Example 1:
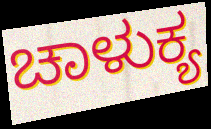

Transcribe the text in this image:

ಚಾಳುಕ್ಯ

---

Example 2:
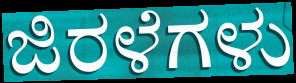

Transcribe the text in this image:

ಜಿರಳೆಗಳು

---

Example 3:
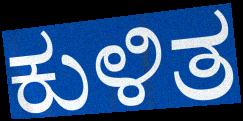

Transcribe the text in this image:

ಕುಳಿತ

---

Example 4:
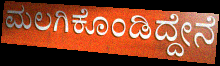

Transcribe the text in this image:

ಮಲಗಿಕೊಂಡಿದ್ದೇನೆ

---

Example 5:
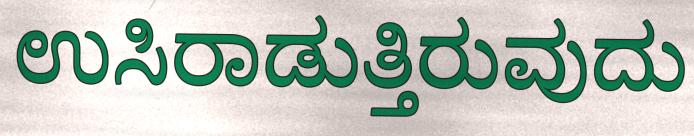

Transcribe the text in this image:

ಉಸಿರಾಡುತ್ತಿರುವುದು